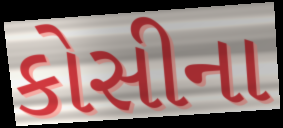
કોસીના